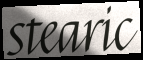
stearic